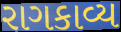
રાગકાવ્ય